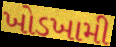
ખોડખામી